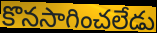
కొనసాగించలేడు